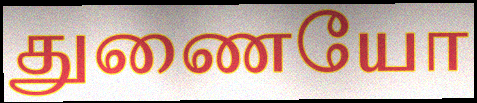
துணையோ